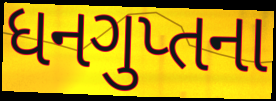
ધનગુપ્તના